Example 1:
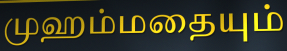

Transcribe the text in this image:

முஹம்மதையும்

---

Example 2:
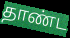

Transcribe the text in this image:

தாண்ட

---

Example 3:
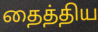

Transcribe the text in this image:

தைத்திய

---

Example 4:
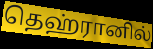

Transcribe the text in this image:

தெஹ்ரானில்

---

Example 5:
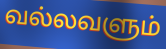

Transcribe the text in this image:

வல்லவளும்